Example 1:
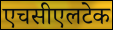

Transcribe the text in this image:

एचसीएलटेक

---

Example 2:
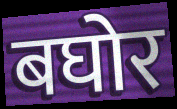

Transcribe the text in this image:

बघोर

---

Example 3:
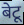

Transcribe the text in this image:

बेटू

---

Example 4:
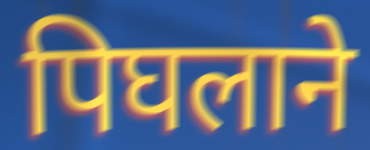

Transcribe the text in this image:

पिघलाने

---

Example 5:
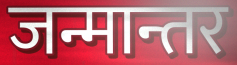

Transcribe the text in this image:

जन्मान्तर